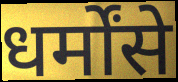
धर्मोंसे